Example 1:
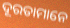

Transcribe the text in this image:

ଦୂରତାମାନେ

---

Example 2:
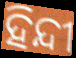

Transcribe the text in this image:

ହିନ୍ଦୀ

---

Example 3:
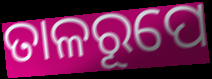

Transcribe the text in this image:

ତାଳରୂପେ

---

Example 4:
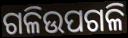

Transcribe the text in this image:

ଗଳିଉପଗଳି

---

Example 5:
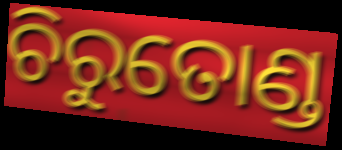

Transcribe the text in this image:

ଚିରୁତୋଣ୍ଡ